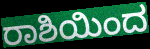
ರಾಶಿಯಿಂದ